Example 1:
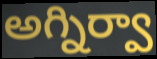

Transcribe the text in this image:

అగ్నిర్వా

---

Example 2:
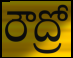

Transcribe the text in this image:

రౌద్రో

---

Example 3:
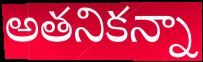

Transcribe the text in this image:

అతనికన్నా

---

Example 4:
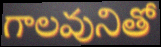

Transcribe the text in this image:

గాలవునితో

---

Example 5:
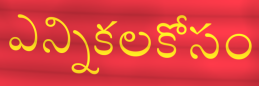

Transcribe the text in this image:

ఎన్నికలకోసం